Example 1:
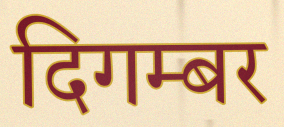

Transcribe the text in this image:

दिगम्बर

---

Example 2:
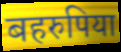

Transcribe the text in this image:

बहरुपिया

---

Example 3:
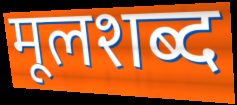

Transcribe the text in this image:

मूलशब्द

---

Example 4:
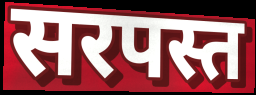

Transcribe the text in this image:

सरपस्त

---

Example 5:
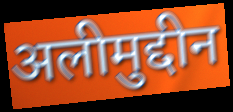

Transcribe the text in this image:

अलीमुद्दीन